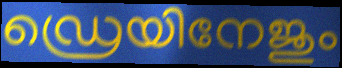
ഡ്രെയിനേജും